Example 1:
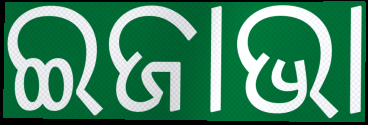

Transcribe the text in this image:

ଇଜାଭା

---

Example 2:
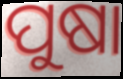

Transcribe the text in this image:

ପୁଷା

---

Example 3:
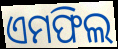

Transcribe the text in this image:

ଏମଫିଲ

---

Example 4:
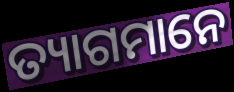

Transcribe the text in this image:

ତ୍ୟାଗମାନେ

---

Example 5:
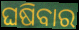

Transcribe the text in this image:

ଘଷିବାର